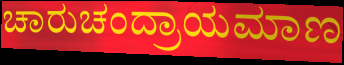
ಚಾರುಚಂದ್ರಾಯಮಾಣ